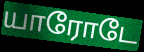
யாரோடே